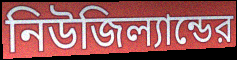
নিউজিল্যান্ডের